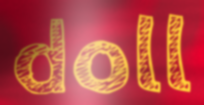
doll